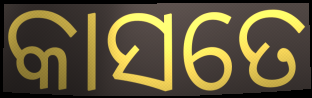
କାସତେ